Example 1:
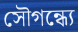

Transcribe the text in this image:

সৌগন্ধ্যে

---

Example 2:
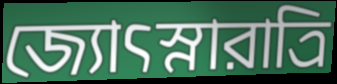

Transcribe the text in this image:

জ্যোৎস্নারাত্রি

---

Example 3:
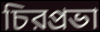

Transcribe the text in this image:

চিরপ্রভা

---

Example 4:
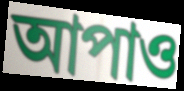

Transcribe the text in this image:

আপাও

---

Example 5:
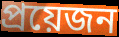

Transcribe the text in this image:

প্রয়েজন